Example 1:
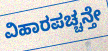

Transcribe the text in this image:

ವಿಹಾರಪಚ್ಚನ್ತೇ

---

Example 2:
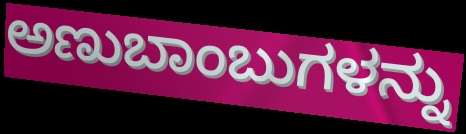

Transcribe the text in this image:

ಅಣುಬಾಂಬುಗಳನ್ನು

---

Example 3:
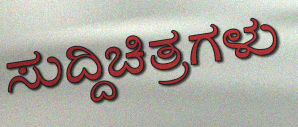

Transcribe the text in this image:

ಸುದ್ದಿಚಿತ್ರಗಳು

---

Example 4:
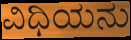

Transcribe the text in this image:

ವಿಧಿಯನು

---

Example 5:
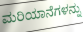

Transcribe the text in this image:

ಮರಿಯಾನೆಗಳನ್ನು